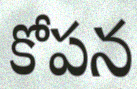
కోపన